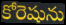
కోరెషును